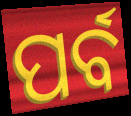
ପର୍ବ